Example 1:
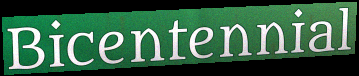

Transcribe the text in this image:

Bicentennial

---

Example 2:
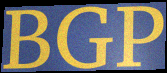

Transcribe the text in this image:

BGP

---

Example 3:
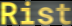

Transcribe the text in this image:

Rist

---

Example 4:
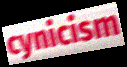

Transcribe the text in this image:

cynicism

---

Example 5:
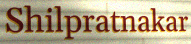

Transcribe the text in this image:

Shilpratnakar